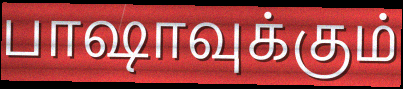
பாஷாவுக்கும்